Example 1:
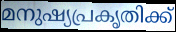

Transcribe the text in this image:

മനുഷ്യപ്രകൃതിക്ക്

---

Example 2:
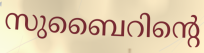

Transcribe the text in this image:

സുബൈറിന്റെ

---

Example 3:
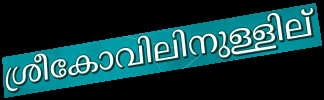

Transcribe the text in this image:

ശ്രീകോവിലിനുള്ളില്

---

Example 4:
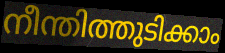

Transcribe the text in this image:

നീന്തിത്തുടിക്കാം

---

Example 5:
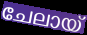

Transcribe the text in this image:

ചേലായ്